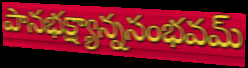
పానభక్ష్యాన్నసంభవమ్